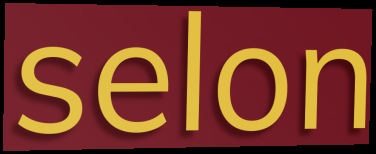
selon